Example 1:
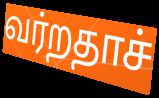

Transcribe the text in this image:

வர்றதாச்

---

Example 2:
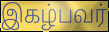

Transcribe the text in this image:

இகழ்பவர்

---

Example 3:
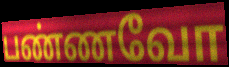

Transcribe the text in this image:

பண்ணவோ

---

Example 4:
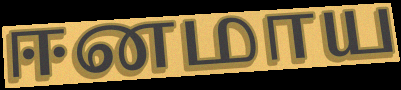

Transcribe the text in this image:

ஈனமாய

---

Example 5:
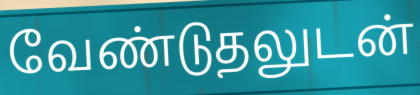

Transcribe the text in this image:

வேண்டுதலுடன்